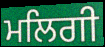
ਮਲਿਗੀ